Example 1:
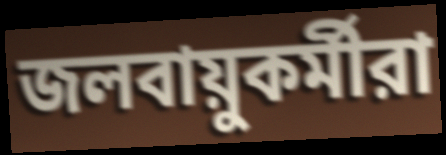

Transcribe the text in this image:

জলবায়ুকর্মীরা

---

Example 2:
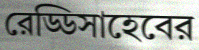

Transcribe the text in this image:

রেড্ডিসাহেবের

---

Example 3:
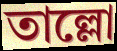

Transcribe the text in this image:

তাল্লো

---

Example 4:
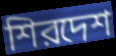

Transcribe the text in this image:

শিরদেশ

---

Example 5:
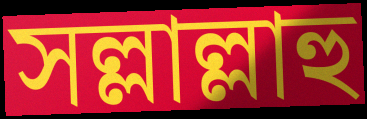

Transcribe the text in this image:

সল্লাল্লাহু